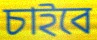
চাইবে